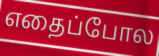
எதைப்போல